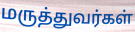
மருத்துவர்கள்